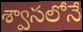
శ్వాసలోనే